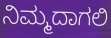
ನಿಮ್ಮದಾಗಲಿ